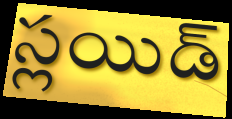
స్లయిడ్